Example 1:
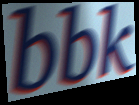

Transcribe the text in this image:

bbk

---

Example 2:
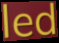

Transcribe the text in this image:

led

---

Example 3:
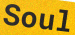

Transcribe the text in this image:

Soul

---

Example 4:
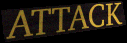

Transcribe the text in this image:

ATTACK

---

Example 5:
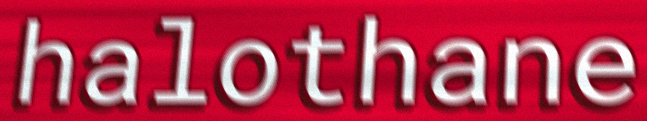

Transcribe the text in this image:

halothane